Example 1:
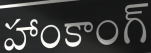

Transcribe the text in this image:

హాంకాంగ్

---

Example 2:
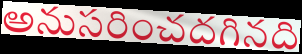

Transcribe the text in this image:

అనుసరించదగినది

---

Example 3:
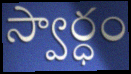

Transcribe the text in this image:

స్వార్ధం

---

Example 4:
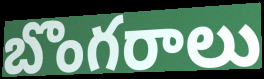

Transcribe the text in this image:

బొంగరాలు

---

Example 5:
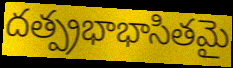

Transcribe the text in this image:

దత్ప్రభాభాసితమై